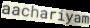
aachariyam